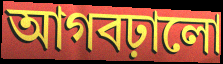
আগবঢ়ালো